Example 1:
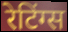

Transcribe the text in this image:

रेटिंग्स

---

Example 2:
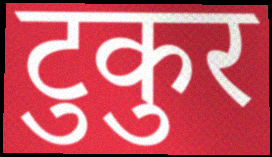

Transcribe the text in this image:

टुकुर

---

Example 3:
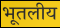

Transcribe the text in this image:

भूतलीय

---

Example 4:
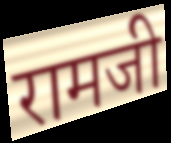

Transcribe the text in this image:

रामजी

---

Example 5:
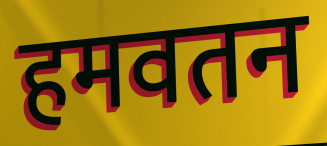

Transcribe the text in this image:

हमवतन